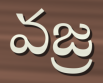
వజ్ర